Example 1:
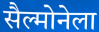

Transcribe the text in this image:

सैल्मोनेला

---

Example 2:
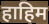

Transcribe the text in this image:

हाहिम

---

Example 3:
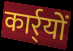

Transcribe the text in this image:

कार्र्यों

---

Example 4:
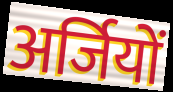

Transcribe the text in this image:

अर्जियों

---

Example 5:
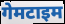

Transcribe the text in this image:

गेमटाइम